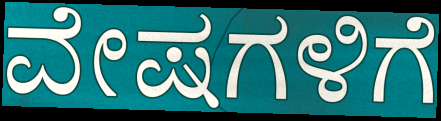
ವೇಷಗಳಿಗೆ